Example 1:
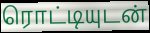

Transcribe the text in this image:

ரொட்டியுடன்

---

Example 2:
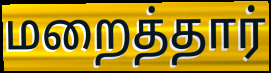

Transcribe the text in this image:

மறைத்தார்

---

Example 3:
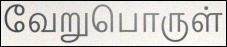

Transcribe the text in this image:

வேறுபொருள்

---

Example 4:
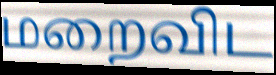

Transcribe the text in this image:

மறைவிட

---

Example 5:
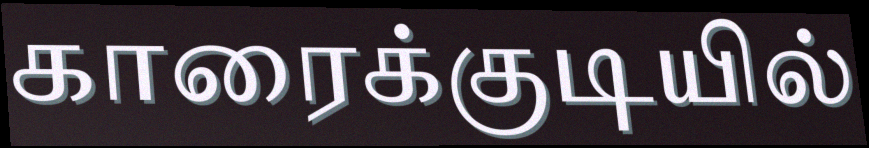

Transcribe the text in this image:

காரைக்குடியில்